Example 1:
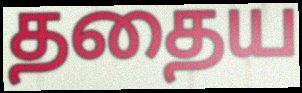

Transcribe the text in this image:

ததைய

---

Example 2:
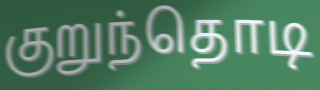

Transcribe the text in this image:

குறுந்தொடி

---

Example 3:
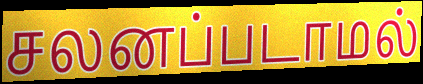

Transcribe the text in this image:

சலனப்படாமல்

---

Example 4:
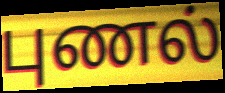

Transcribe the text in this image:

புணல்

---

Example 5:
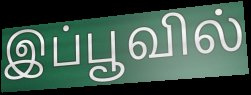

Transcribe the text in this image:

இப்பூவில்